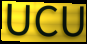
UCU